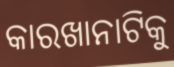
କାରଖାନାଟିକୁ